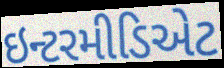
ઇન્ટરમીડિએટ